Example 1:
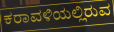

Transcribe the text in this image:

ಕರಾವಳಿಯಲ್ಲಿರುವ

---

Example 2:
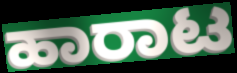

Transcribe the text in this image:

ಹಾರಾಟ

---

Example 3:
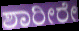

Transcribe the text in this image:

ಶಾರೀರೇ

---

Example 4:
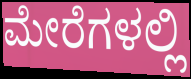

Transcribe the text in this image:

ಮೇರೆಗಳಲ್ಲಿ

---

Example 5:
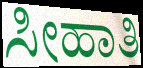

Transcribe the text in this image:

ಸೀಹಾತಿ